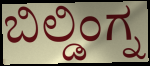
ಬಿಲ್ಡಿಂಗ್ನ